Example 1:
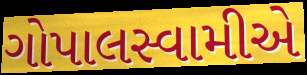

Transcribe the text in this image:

ગોપાલસ્વામીએ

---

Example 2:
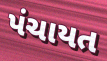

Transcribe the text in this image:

પંચાયત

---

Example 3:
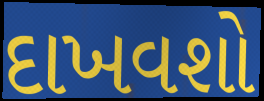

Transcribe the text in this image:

દાખવશો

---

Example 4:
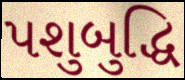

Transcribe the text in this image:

પશુબુદ્ધિ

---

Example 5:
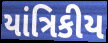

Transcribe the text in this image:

યાંત્રિકીય